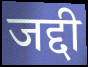
जद्दी